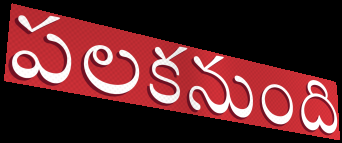
పలకనుంది